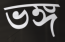
ভঙ্গ